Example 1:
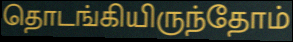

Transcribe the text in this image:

தொடங்கியிருந்தோம்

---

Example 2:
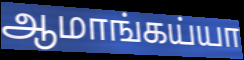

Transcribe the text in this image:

ஆமாங்கய்யா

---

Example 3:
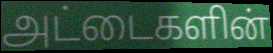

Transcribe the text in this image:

அட்டைகளின்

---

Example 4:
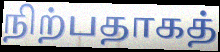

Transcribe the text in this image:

நிற்பதாகத்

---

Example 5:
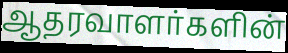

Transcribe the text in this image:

ஆதரவாளர்களின்